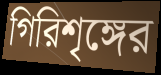
গিরিশৃঙ্গের